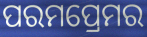
ପରମପ୍ରେମର